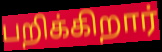
பறிக்கிறார்